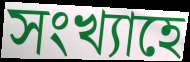
সংখ্যাহে